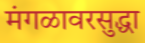
मंगळावरसुद्धा